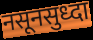
नसूनसुध्दा